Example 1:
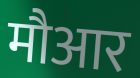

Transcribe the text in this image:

मौआर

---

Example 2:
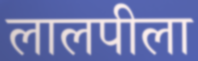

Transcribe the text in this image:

लालपीला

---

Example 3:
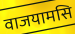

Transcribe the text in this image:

वाजयामसि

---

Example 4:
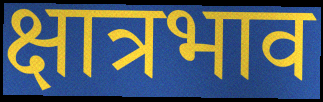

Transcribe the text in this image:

क्षात्रभाव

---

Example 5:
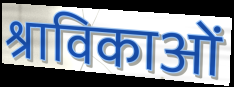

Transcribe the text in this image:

श्राविकाओं